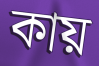
কায়